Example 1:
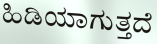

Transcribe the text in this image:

ಹಿಡಿಯಾಗುತ್ತದೆ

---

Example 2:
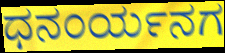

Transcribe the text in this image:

ಧನಂರ್ಯನಗ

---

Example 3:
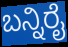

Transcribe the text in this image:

ಬನ್ನಿರೈ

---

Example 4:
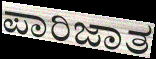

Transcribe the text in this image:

ಪಾರಿಜಾತ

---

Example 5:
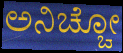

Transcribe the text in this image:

ಅನಿಚ್ಚೋ